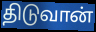
திடுவான்